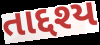
તાદ્દશ્ય